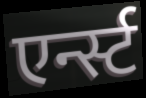
एर्न्स्ट